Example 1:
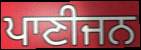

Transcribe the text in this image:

ਪਾਣੀਜਨ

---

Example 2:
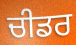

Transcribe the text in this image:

ਚੀਡਰ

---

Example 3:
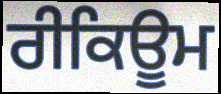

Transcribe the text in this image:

ਰੀਕਿਊਮ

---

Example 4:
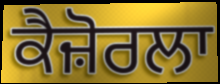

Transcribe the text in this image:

ਕੈਜ਼ੋਰਲਾ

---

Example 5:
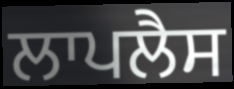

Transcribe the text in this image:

ਲਾਪਲੈਸ